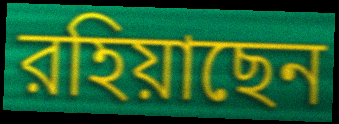
রহিয়াছেন